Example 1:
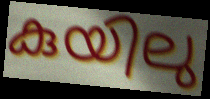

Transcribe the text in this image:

കുയിലു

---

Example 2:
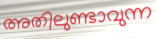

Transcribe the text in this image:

അതിലുണ്ടാവുന്ന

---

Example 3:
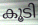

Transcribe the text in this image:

കൂടി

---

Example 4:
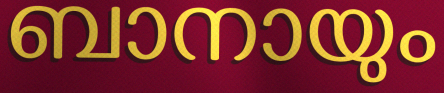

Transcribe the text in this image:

ബാനായും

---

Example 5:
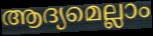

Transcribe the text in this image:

ആദ്യമെല്ലാം